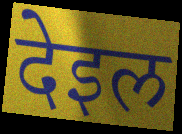
देइल